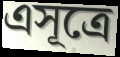
এসূত্রে